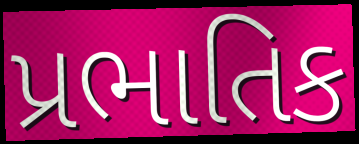
પ્રભાતિક